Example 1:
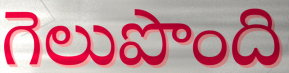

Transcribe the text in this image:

గెలుపొంది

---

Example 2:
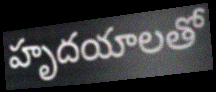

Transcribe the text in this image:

హృదయాలతో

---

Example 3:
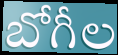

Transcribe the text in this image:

బోగీల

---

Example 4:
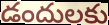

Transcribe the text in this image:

డందులకు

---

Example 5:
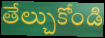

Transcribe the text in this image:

తేల్చుకోండి